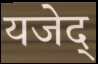
यजेद्